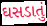
ઘસડાતું